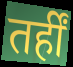
तर्हीं